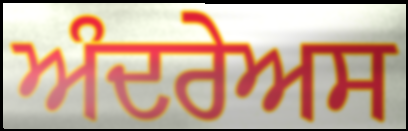
ਅੰਦਰੇਅਸ